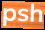
psh